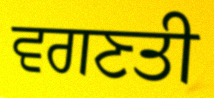
ਵਗਣਤੀ